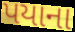
પયાના